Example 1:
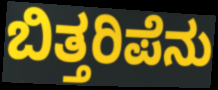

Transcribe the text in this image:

ಬಿತ್ತರಿಪೆನು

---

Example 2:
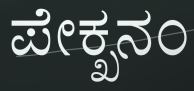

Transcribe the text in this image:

ಪೇಕ್ಖನಂ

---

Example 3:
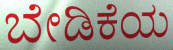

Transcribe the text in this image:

ಬೇಡಿಕೆಯ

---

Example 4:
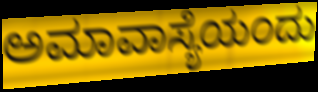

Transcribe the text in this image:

ಅಮಾವಾಸ್ಯೆಯಂದು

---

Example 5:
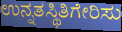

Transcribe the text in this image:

ಉನ್ನತಸ್ಥಿತಿಗೇರಿಸು